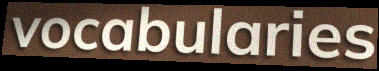
vocabularies